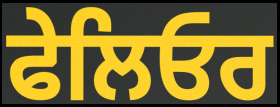
ਫੇਲਿਓਰ